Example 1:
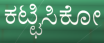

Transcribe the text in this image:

ಕಟ್ಟಿಸಿಕೋ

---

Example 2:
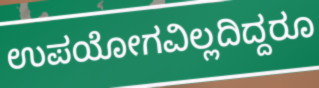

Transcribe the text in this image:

ಉಪಯೋಗವಿಲ್ಲದಿದ್ದರೂ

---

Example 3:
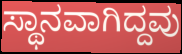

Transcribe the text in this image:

ಸ್ಥಾನವಾಗಿದ್ದವು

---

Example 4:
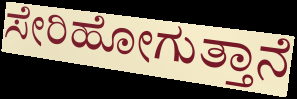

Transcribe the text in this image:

ಸೇರಿಹೋಗುತ್ತಾನೆ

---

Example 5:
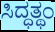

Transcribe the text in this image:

ಸಿದ್ಧತ್ಥಂ